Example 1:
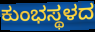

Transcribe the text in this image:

ಕುಂಭಸ್ಥಳದ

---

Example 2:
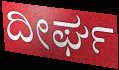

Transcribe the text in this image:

ದೀರ್ಘ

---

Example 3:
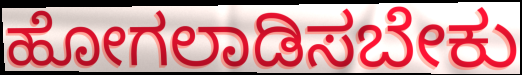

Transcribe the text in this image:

ಹೋಗಲಾಡಿಸಬೇಕು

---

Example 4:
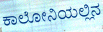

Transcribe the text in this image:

ಕಾಲೋನಿಯಲ್ಲಿನ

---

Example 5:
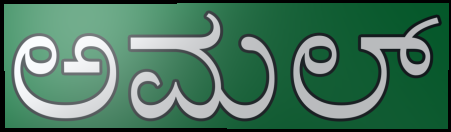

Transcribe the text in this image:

ಅಮಲ್